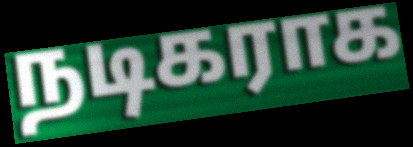
நடிகராக